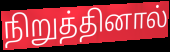
நிறுத்தினால்